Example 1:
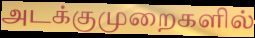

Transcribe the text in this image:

அடக்குமுறைகளில்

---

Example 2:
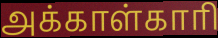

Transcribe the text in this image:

அக்காள்காரி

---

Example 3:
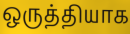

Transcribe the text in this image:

ஒருத்தியாக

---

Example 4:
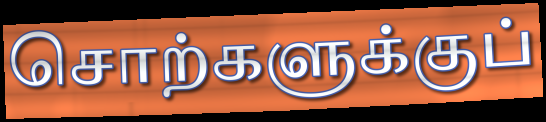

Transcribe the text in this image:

சொற்களுக்குப்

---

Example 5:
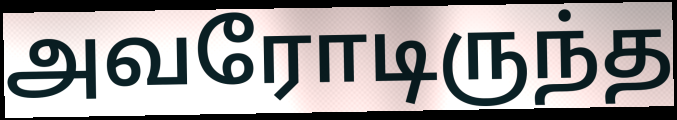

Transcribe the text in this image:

அவரோடிருந்த